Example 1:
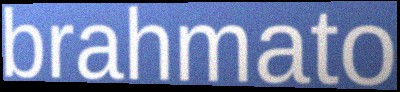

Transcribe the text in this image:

brahmato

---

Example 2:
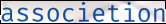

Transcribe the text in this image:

associetion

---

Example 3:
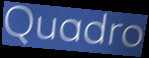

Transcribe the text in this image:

Quadro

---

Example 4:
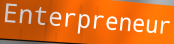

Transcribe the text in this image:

Enterpreneur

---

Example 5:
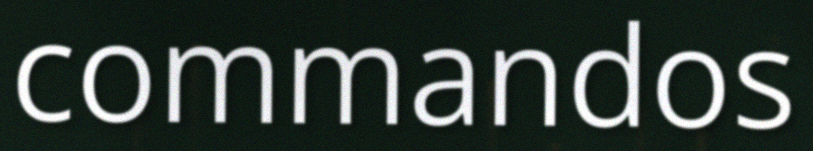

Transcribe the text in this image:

commandos